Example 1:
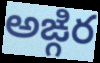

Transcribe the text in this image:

అఙ్గిర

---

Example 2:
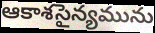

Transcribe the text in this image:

ఆకాశసైన్యమును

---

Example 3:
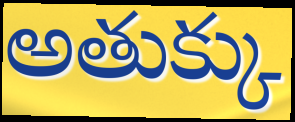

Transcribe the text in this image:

అతుక్కు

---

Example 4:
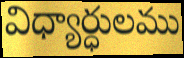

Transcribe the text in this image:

విధ్యార్ధులము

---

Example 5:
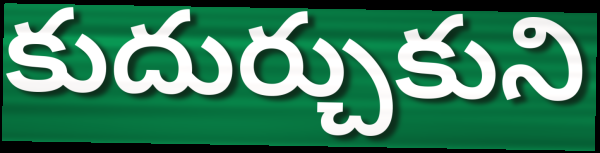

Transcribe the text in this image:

కుదుర్చుకుని